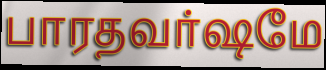
பாரதவர்ஷமே